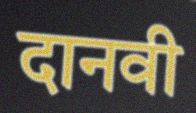
दानवी